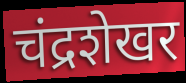
चंद्रशेखर